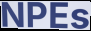
NPEs